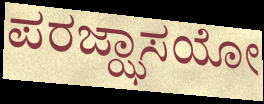
ಪರಜ್ಝಾಸಯೋ